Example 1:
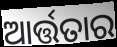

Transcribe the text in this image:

ଆର୍ତ୍ତତାର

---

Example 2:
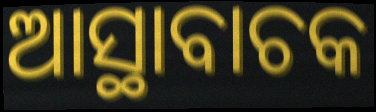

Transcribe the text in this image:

ଆସ୍ଥାବାଚକ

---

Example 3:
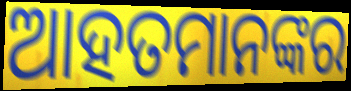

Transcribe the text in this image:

ଆହତମାନଙ୍କର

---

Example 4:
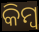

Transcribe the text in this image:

କିମ୍ବ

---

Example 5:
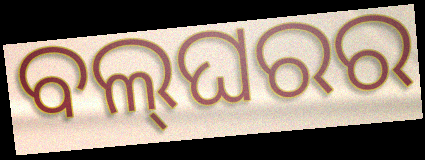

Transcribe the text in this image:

ବଲ୍‌ଘରର